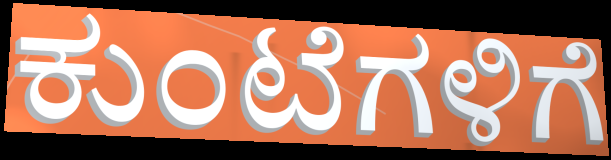
ಕುಂಟೆಗಳಿಗೆ